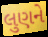
લુણને